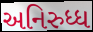
અનિરુધ્ધ